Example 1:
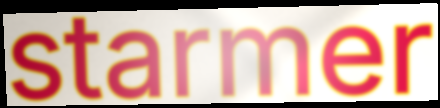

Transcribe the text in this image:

starmer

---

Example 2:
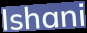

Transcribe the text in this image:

Ishani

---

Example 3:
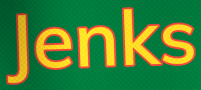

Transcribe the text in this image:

Jenks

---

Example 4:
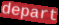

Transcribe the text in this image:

depart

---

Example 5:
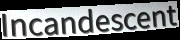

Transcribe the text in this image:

Incandescent